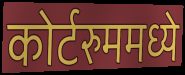
कोर्टरुममध्ये